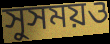
সুসময়ও